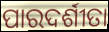
ପାରଦର୍ଶୀତା